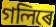
গলিৰে